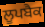
ਲੂਪਬੈਕ